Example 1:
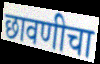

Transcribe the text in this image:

छावणीचा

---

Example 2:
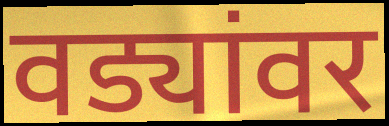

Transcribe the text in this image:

वड्यांवर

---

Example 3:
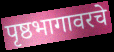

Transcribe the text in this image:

पृष्ठभागावरचे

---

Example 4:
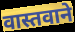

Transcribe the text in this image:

वास्तवाने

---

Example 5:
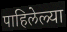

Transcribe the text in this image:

पाहिलेल्या